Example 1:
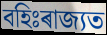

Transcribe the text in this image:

বহিঃৰাজ্যত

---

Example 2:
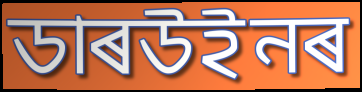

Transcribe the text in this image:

ডাৰউইনৰ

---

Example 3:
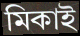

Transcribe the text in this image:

মিকাই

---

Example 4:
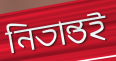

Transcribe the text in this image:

নিতান্তই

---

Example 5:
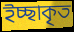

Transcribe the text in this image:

ইচ্ছাকৃত